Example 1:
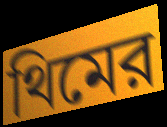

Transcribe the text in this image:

থিমের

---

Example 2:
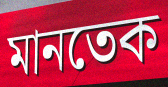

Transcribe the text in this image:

মানতেক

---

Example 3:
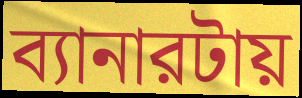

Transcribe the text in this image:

ব্যানারটায়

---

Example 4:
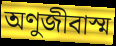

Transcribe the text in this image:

অণুজীবাস্ম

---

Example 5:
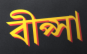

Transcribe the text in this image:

বীপ্সা